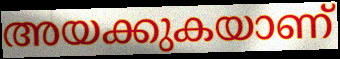
അയക്കുകയാണ്